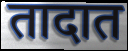
तादात